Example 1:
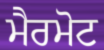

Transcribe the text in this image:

ਮੈਰਮੋਟ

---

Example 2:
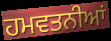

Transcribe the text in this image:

ਹਮਵਤਨੀਆਂ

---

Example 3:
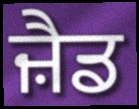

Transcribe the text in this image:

ਜ਼ੈਡ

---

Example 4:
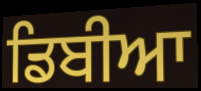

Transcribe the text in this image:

ਡਿਬੀਆ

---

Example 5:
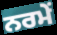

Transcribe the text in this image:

ਨਰਮੇਂ